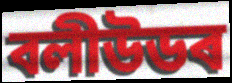
বলীউডৰ